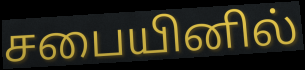
சபையினில்